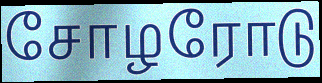
சோழரோடு